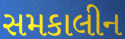
સમકાલીન